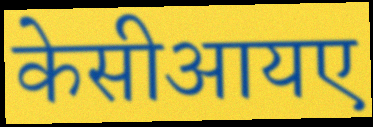
केसीआयए